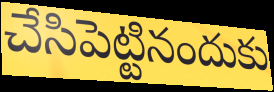
చేసిపెట్టినందుకు